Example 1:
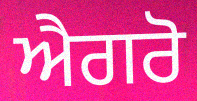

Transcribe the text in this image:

ਐਗਰੋ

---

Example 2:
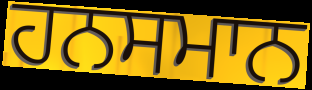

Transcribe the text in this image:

ਹਨਸਮਾਨ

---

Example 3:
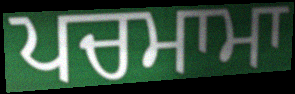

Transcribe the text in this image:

ਪਚਮਾਮਾ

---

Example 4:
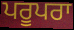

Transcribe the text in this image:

ਪਰੂਪਰਾ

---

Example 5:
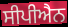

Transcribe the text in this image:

ਸੀਪੀਐਨ